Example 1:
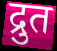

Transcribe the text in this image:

द्रुत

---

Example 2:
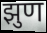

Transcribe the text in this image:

झुण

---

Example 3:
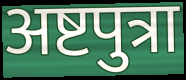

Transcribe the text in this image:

अष्टपुत्रा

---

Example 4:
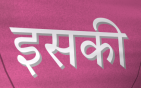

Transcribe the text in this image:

इसकी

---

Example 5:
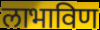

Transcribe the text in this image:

लाभाविण